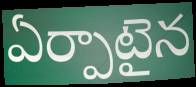
ఏర్పాటైన